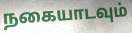
நகையாடவும்